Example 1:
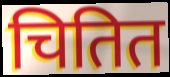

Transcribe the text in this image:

चितित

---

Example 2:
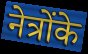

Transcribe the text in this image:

नेत्रोंके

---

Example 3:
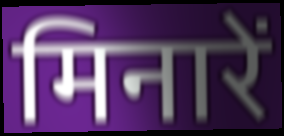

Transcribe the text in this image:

मिनारें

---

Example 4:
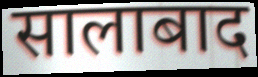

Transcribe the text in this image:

सालाबाद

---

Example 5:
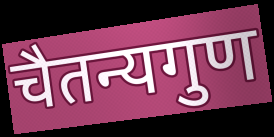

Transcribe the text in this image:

चैतन्यगुण